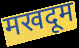
मखदूम